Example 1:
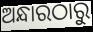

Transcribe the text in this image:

ଅନ୍ଧାରଠାରୁ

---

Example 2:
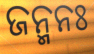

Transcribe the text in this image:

ଜନ୍ମନଃ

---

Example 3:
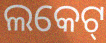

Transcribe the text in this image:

ଲକେଟ୍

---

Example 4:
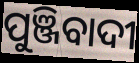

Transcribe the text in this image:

ପୁଞ୍ଜିବାଦୀ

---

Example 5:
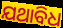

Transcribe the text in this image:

ଯଥାବିଧ